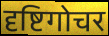
दृष्टिगोचर